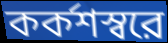
কর্কশস্বরে